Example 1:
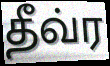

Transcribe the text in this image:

தீவ்ர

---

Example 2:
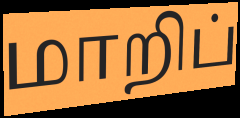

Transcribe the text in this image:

மாறிப்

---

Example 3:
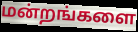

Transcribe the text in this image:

மன்றங்களை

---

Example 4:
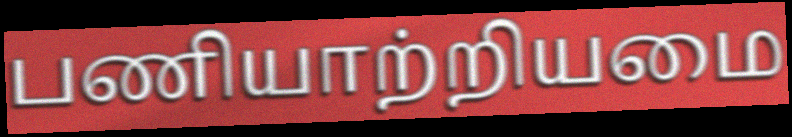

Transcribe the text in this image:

பணியாற்றியமை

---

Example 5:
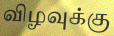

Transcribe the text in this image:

விழவுக்கு